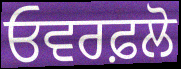
ਓਵਰਫ਼ਲੋ